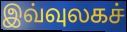
இவ்வுலகச்